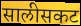
सालीसकट